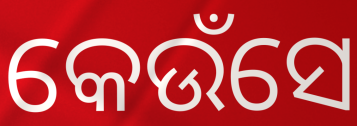
କେଉଁସେ